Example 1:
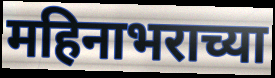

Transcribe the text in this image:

महिनाभराच्या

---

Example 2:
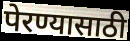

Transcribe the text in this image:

पेरण्यासाठी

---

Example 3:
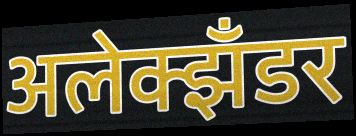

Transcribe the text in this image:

अलेक्झँडर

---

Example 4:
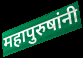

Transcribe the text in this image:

महापुरुषांनी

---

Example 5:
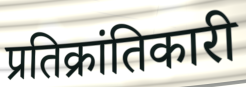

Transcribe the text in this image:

प्रतिक्रांतिकारी